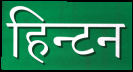
हिन्टन